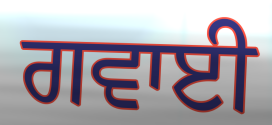
ਗਵਾਈ